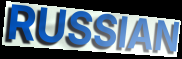
RUSSIAN